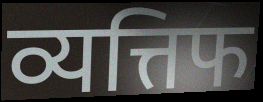
व्यत्तिफ